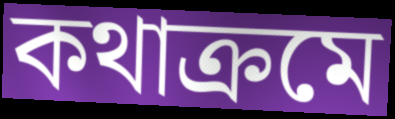
কথাক্রমে